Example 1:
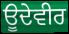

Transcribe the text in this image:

ਊਦੇਵੀਰ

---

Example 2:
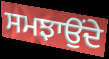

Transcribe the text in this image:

ਸਮਝਾਉੰਦੇ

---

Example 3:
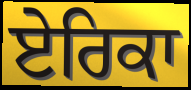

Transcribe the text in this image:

ਏਰਿਕਾ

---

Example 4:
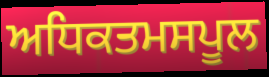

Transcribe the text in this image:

ਅਧਿਕਤਮਸਪੂਲ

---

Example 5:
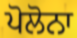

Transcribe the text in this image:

ਪੋਲੋਨਾ